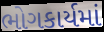
ભોગકાર્યમાં